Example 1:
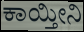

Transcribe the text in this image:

ಕಾಯ್ತೀನಿ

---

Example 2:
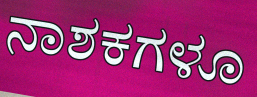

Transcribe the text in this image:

ನಾಶಕಗಳೂ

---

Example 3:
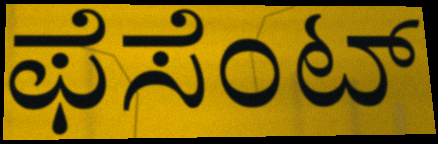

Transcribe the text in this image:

ಫೆಸೆಂಟ್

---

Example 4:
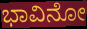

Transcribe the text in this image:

ಭಾವಿನೋ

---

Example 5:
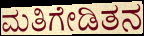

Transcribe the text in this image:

ಮತಿಗೇಡಿತನ